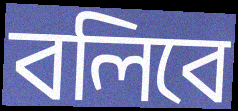
বলিবে